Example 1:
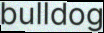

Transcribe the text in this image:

bulldog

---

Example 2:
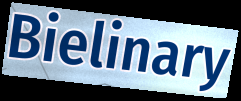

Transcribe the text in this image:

Bielinary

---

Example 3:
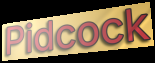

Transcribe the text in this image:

Pidcock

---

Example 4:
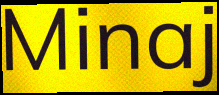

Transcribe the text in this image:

Minaj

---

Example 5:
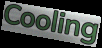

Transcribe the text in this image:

Cooling